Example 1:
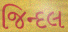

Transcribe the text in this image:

જિન્દલ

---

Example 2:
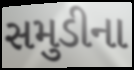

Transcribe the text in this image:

સમુડીના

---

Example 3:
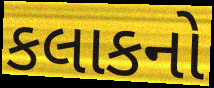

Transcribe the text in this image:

કલાકનો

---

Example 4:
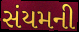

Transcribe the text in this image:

સંયમની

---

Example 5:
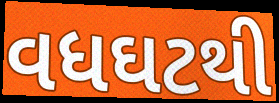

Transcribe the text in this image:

વધઘટથી